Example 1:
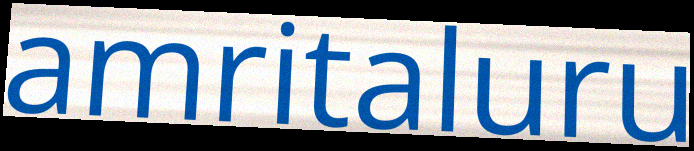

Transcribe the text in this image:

amritaluru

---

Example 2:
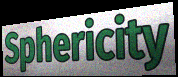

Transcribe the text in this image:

Sphericity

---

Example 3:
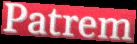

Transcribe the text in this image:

Patrem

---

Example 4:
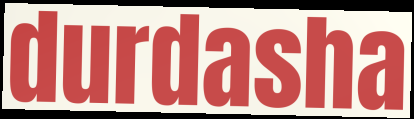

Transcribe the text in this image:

durdasha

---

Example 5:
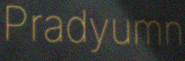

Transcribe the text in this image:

Pradyumn